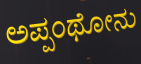
ಅಪ್ಪಂಥೋನು